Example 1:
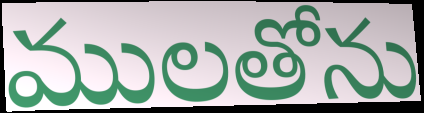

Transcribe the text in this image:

ములతోను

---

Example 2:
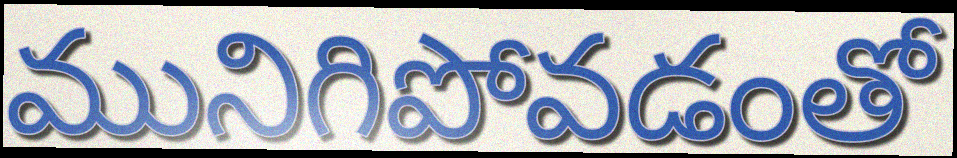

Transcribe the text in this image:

మునిగిపోవడంతో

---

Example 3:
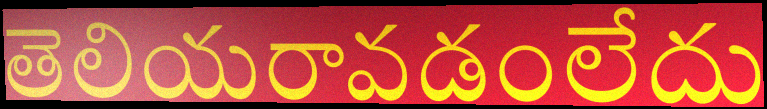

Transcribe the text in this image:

తెలియరావడంలేదు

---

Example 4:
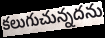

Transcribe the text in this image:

కలుగుచున్నదను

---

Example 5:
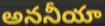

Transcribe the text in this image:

అననీయా